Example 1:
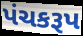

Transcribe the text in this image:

પંચકરૂપ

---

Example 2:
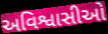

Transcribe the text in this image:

અવિશ્વાસીઓ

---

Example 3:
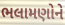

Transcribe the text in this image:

ભલામણોને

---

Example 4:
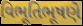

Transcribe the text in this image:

વિભૂતિભૂષણે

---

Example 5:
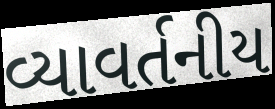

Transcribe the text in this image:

વ્યાવર્તનીય